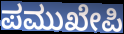
ಪಮುಖೇಪಿ